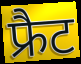
फ्रैट